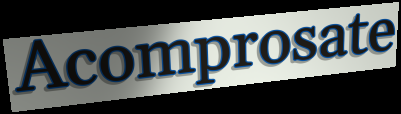
Acomprosate